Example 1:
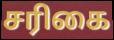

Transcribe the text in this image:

சரிகை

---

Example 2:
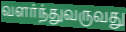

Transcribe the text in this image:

வளர்ந்துவருவது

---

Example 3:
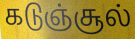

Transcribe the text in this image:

கடுஞ்சூல்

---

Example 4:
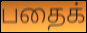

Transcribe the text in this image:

பதைக்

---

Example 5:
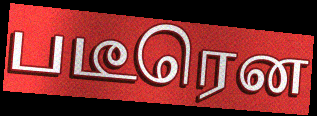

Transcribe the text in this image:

படீரென